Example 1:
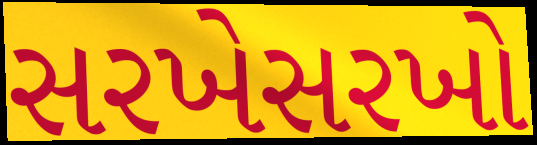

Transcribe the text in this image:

સરખેસરખો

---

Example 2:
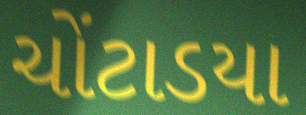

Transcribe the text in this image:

ચોંટાડયા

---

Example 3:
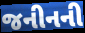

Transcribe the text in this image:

જનીનની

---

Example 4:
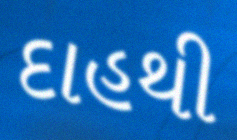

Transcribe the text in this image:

દાહથી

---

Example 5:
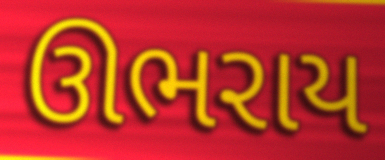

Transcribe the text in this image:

ઊભરાય